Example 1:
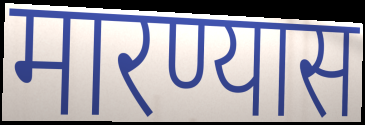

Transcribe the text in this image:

मारण्यास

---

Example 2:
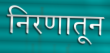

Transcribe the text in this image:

निरणातून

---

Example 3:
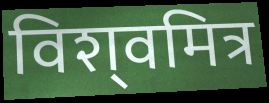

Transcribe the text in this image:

विश्वमित्र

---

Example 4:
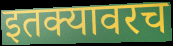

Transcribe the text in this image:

इतक्यावरच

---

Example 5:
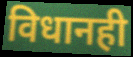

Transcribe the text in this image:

विधानही